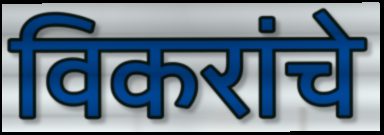
विकरांचे